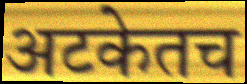
अटकेतच